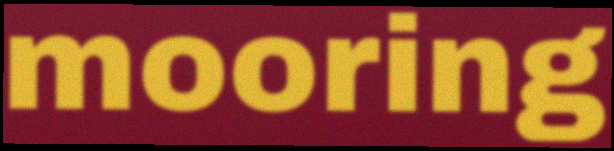
mooring